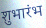
शुभारंभ